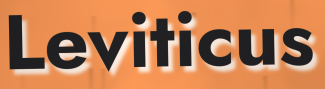
Leviticus